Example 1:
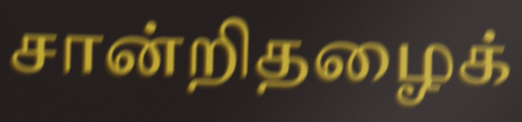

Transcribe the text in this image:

சான்றிதழைக்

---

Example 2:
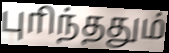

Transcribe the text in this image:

புரிந்ததும்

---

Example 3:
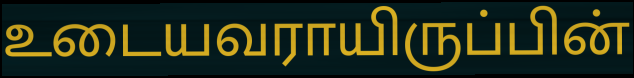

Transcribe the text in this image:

உடையவராயிருப்பின்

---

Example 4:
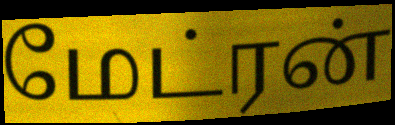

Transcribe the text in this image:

மேட்ரன்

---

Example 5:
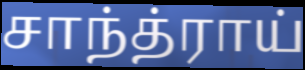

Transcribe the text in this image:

சாந்த்ராய்